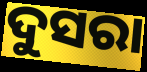
ଦୁସରା